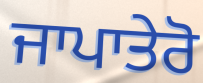
ਜਾਪਾਤੇਰੋ